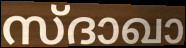
സ്ദാഖാ